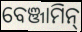
ବେଞ୍ଜାମିନ୍